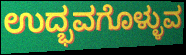
ಉದ್ಭವಗೊಳ್ಳುವ